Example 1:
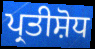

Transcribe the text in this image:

ਪ੍ਰਤੀਸ਼ੋਧ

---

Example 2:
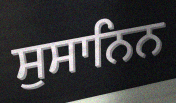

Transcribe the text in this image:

ਸੁਸਾਨਿਨ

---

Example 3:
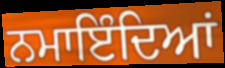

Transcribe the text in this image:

ਨਮਾਇੰਦਿਆਂ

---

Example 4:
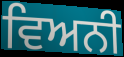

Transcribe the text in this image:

ਵਿਅਨੀ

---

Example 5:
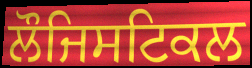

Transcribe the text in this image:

ਲੌਜਿਸਟਿਕਲ